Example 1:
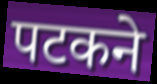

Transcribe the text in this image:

पटकने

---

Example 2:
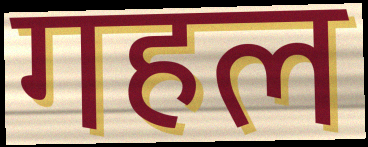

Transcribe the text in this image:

गहल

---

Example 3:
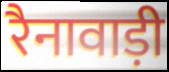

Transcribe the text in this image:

रैनावाड़ी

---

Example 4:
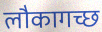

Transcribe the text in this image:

लौकागच्छ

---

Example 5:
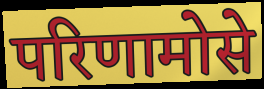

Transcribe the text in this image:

परिणामोसे